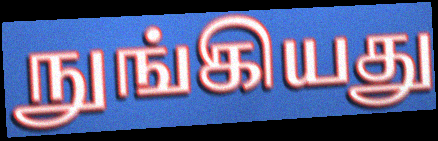
நுங்கியது